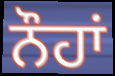
ਨੌਹਾਂ